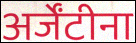
अर्जेंटीना